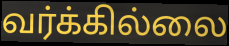
வர்க்கில்லை